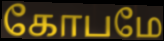
கோபமே